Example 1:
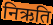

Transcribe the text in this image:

निऋति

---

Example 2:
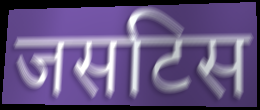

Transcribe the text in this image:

जसटिस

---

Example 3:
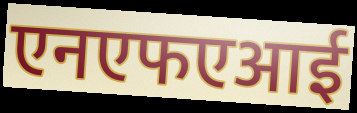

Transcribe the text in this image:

एनएफएआई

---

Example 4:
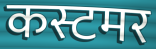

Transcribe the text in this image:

कस्‍टमर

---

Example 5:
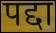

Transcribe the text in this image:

पद्दा